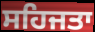
ਸਹਿਜਤਾ